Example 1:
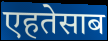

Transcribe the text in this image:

एहतेसाब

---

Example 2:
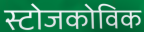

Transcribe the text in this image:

स्टोजकोविक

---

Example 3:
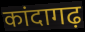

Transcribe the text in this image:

कांदागढ़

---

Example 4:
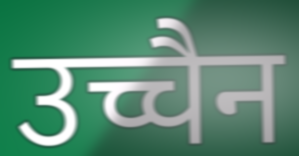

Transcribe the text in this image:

उच्चैन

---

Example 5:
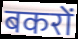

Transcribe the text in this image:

बकरों